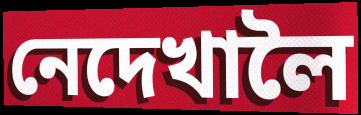
নেদেখালৈ